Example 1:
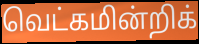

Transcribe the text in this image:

வெட்கமின்றிக்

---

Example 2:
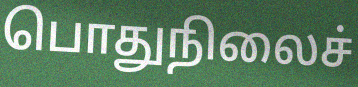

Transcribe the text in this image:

பொதுநிலைச்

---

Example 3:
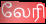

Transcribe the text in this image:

லேரி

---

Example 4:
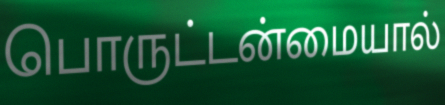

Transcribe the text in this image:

பொருட்டன்மையால்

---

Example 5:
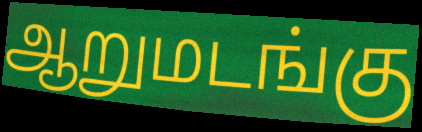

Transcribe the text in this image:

ஆறுமடங்கு